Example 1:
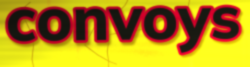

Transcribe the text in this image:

convoys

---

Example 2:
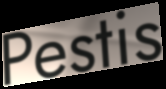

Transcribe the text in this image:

Pestis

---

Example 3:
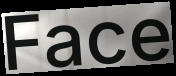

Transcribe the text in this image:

Face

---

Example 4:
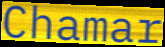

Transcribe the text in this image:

Chamar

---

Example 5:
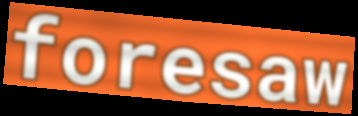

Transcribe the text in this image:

foresaw